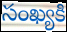
సంఖ్యకి